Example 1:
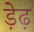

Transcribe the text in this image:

ड़ेढ़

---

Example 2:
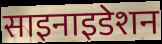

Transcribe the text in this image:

साइनाइडेशन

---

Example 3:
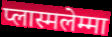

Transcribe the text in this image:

प्लास्मलेम्मा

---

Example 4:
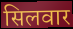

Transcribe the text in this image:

सिलवार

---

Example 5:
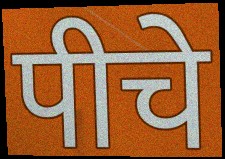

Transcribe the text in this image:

पीचे